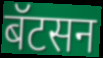
बॅटसन